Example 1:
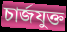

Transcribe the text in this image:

চার্জযুক্ত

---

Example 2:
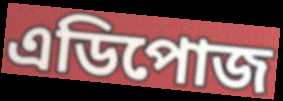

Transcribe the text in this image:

এডিপোজ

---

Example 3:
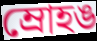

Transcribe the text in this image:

ম্রোহঙ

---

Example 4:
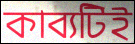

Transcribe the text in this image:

কাব্যটিই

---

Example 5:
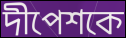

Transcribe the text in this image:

দীপেশকে